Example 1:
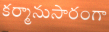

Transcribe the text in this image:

కర్మానుసారంగా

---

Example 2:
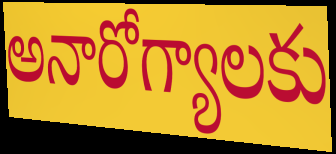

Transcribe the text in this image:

అనారోగ్యాలకు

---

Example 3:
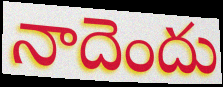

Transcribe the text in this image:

నాదెందు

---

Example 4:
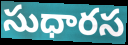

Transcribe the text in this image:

సుధారస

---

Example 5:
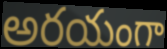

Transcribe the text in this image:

అరయంగా